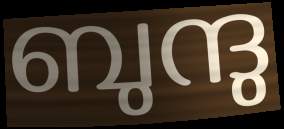
ബുന്ദു